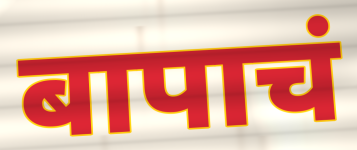
बापाचं